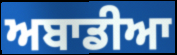
ਅਬਾਡੀਆ